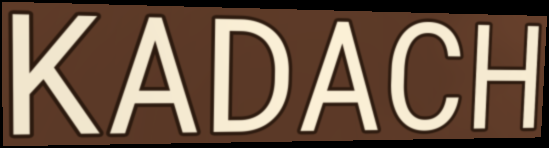
KADACH